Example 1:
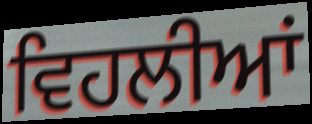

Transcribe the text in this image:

ਵਿਹਲੀਆਂ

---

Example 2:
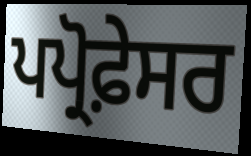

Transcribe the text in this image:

ਪਪ੍ਰੋਫ਼ੇਸਰ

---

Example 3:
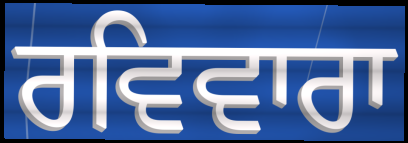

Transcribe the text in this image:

ਰਵਿਵਾਰਾ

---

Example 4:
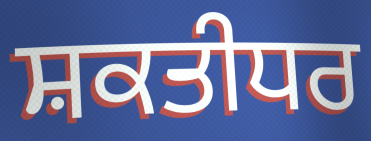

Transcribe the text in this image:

ਸ਼ਕਤੀਧਰ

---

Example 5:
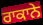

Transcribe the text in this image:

ਰਾਕਾਨੇ